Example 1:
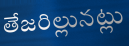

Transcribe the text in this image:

తేజరిల్లునట్లు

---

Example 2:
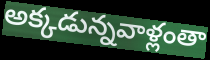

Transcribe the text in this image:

అక్కడున్నవాళ్లంతా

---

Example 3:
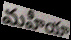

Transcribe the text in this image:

మహీయా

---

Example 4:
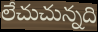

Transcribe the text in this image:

లేచుచున్నది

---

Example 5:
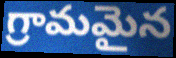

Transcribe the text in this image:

గ్రామమైన